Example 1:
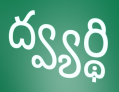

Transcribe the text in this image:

ద్వ్యర్థి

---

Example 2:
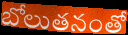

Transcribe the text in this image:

బోలుతనంతో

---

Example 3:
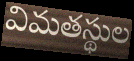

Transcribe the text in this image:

విమతస్థుల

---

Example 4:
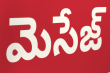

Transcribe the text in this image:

మెసేజ్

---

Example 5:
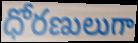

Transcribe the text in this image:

ధోరణులుగా